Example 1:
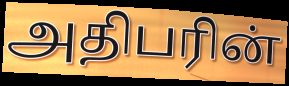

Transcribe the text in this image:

அதிபரின்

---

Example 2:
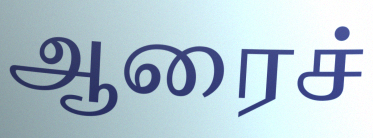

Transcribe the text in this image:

ஆரைச்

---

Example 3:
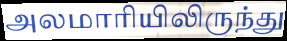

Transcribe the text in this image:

அலமாரியிலிருந்து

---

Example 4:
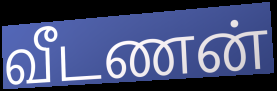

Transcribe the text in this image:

வீடணன்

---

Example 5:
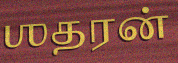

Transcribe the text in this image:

ஶதரன்